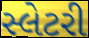
સ્લેટરી